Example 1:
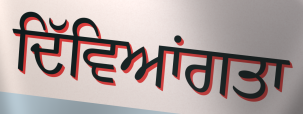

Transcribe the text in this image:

ਦਿੱਵਿਆਂਗਤਾ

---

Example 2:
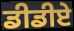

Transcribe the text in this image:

ਡੀਡੀਏ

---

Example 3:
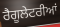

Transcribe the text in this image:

ਰੈਗੂਲੇਟਰੀਆਂ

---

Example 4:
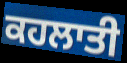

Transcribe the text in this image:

ਕਹਲਾਤੀ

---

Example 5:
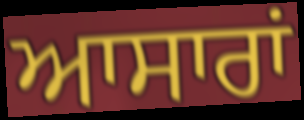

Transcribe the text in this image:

ਆਸਾਰਾਂ